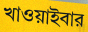
খাওয়াইবার